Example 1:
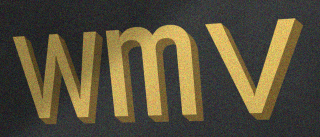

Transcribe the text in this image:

wmv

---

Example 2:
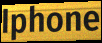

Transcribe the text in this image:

Iphone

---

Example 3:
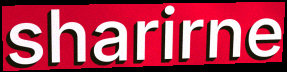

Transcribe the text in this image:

sharirne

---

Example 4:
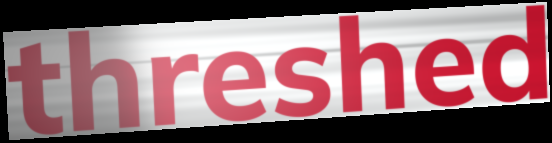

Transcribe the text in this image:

threshed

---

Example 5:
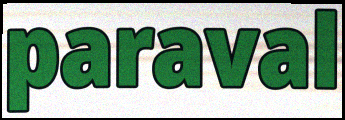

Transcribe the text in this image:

paraval